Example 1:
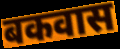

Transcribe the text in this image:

बकवास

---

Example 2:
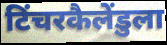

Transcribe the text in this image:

टिंचरकैलेंडुला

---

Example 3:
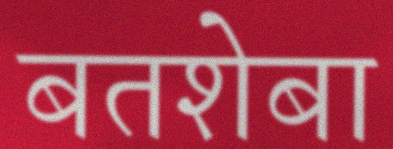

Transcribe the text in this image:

बतशेबा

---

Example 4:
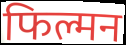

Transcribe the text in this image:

फिल्मन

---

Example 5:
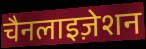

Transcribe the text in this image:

चैनलाइज़ेशन